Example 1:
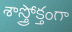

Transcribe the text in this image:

శాస్త్రోక్తంగా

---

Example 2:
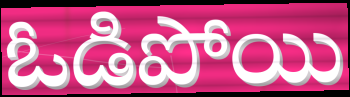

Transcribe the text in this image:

ఓడిపోయి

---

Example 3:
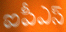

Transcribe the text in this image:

ఐపీఎస్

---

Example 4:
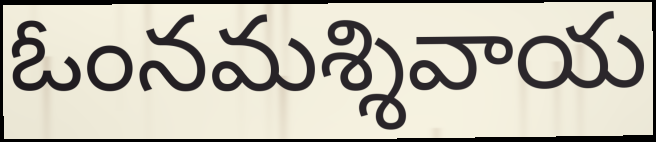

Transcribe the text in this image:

ఓంనమశ్శివాయ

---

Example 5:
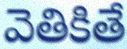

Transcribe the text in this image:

వెతికితే